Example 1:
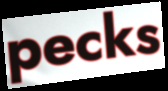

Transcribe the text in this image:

pecks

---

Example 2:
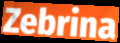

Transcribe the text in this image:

Zebrina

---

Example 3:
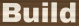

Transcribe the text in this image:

Build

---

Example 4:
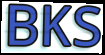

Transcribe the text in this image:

BKS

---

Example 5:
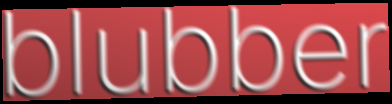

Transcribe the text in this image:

blubber